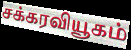
சக்கரவியூகம்